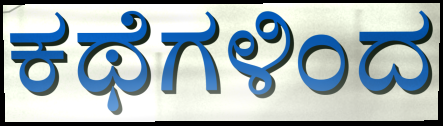
ಕಥೆಗಳಿಂದ